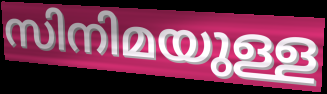
സിനിമയുള്ള